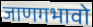
जाणगभावो